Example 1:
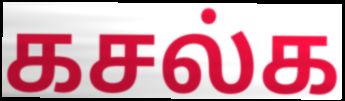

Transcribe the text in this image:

கசல்க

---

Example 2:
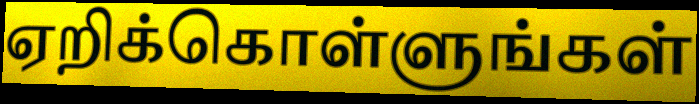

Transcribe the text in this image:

ஏறிக்கொள்ளுங்கள்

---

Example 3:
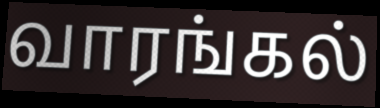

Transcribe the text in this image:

வாரங்கல்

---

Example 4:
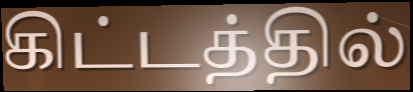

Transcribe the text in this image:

கிட்டத்தில்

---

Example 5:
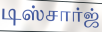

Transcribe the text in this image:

டிஸ்சார்ஜ்